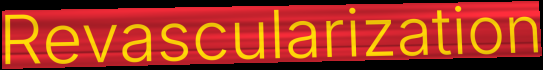
Revascularization